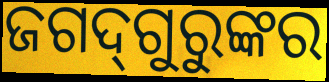
ଜଗଦ୍‌ଗୁରୁଙ୍କର